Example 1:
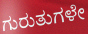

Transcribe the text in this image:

ಗುರುತುಗಳೇ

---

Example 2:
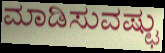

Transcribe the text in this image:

ಮಾಡಿಸುವಷ್ಟು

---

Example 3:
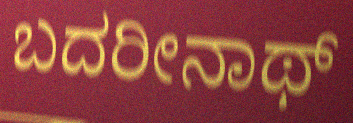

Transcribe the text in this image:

ಬದರೀನಾಥ್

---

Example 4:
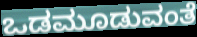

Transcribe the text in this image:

ಒಡಮೂಡುವಂತೆ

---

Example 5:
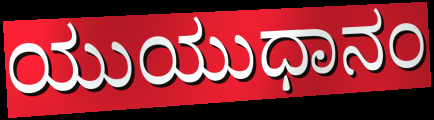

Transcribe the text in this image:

ಯುಯುಧಾನಂ